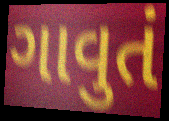
ગાવુતં